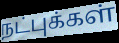
நட்புக்கள்